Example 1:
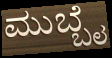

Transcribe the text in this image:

ಮುಬ್ಬೈ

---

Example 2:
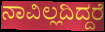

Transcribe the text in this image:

ನಾವಿಲ್ಲದಿದ್ದರೆ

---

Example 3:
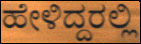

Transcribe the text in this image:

ಹೇಳಿದ್ದರಲ್ಲಿ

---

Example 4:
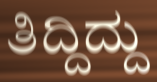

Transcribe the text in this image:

ತಿದ್ದಿದ್ದು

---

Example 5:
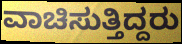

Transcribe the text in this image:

ವಾಚಿಸುತ್ತಿದ್ದರು